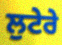
ਲੁਟੇਰੇ